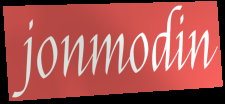
jonmodin